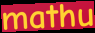
mathu